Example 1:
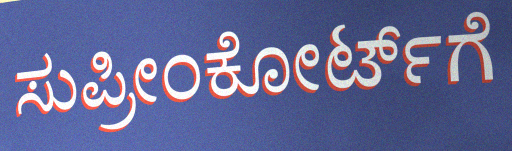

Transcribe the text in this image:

ಸುಪ್ರೀಂಕೋರ್ಟ್‌ಗೆ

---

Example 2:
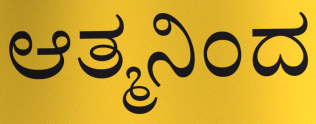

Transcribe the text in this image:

ಆತ್ಮನಿಂದ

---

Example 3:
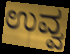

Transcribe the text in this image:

ಉವ್ವ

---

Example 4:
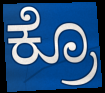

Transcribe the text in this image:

ಕ್ರೊ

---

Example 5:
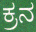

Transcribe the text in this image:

ಕ್ರನ